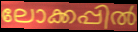
ലോക്കപ്പിൽ